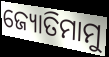
ଜ୍ୟୋତିମାମୁ